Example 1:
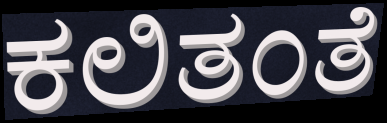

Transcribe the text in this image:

ಕಲಿತಂತೆ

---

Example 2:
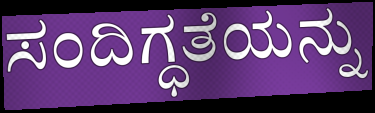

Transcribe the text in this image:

ಸಂದಿಗ್ಧತೆಯನ್ನು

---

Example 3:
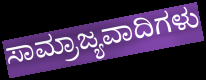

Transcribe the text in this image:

ಸಾಮ್ರಾಜ್ಯವಾದಿಗಳು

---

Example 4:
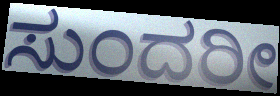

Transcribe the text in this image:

ಸುಂದರೀ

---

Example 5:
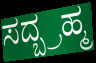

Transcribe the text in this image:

ಸದ್ಬ್ರಹ್ಮ